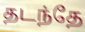
தடந்தே